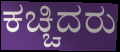
ಕಚ್ಚಿದರು